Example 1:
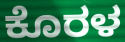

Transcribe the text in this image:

ಕೊರಳ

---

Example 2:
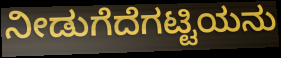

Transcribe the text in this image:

ನೀಡುಗೆದೆಗಟ್ಟಿಯನು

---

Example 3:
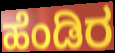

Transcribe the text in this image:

ಹೆಂಡಿರ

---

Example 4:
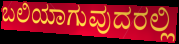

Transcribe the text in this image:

ಬಲಿಯಾಗುವುದರಲ್ಲಿ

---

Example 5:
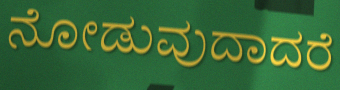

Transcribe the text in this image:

ನೋಡುವುದಾದರೆ